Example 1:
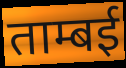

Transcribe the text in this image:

ताम्बई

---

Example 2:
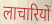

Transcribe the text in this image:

लाचारियों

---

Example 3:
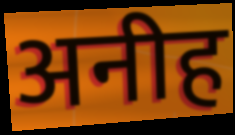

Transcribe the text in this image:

अनीह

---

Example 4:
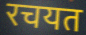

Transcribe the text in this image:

रचयत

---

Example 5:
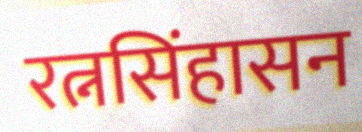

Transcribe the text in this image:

रत्नसिंहासन